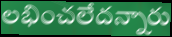
లభించలేదన్నారు